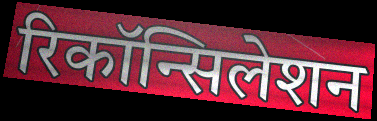
रिकॉन्सिलेशन